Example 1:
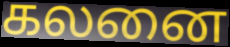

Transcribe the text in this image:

கலனை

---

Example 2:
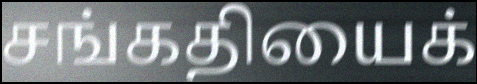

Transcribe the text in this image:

சங்கதியைக்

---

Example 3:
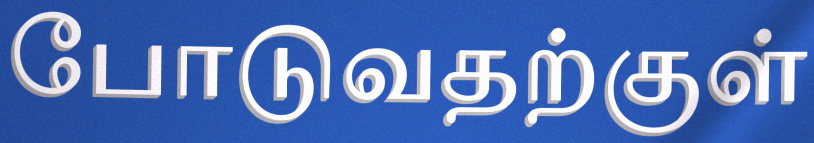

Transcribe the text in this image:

போடுவதற்குள்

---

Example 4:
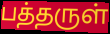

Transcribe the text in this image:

பத்தருள்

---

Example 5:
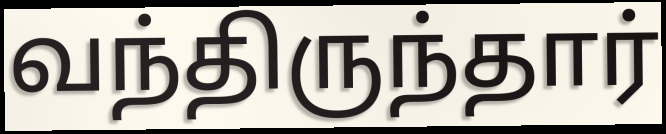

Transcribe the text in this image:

வந்திருந்தார்